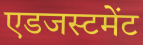
एडजस्‍टमेंट